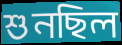
শুনছিল